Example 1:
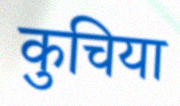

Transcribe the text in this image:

कुचिया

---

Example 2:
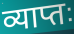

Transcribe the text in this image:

व्याप्तः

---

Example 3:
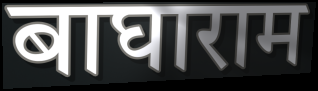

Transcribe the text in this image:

बाघाराम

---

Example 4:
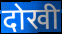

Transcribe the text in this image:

दोखी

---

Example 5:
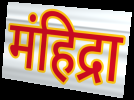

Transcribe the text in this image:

मंहिद्रा